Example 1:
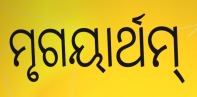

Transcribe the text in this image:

ମୃଗୟାର୍ଥମ୍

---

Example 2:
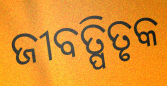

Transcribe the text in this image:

ଜୀବତ୍ପିତୃକ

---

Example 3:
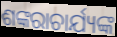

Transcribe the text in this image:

ଶଙ୍କରାଚାର୍ଯ୍ୟଙ୍କ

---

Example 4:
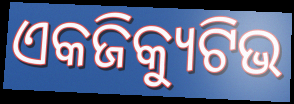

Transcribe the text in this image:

ଏକଜିକ୍ୟୁଟିଭ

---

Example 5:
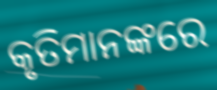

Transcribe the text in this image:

କୃତିମାନଙ୍କରେ